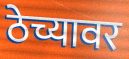
ठेच्यावर